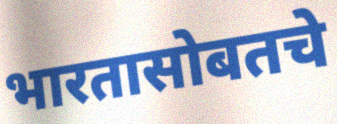
भारतासोबतचे